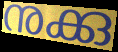
നുക്കു